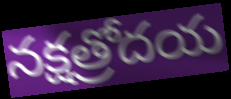
నక్షత్రోదయ